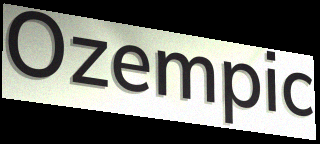
Ozempic